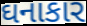
ઘનાકાર